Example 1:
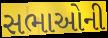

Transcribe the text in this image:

સભાઓની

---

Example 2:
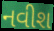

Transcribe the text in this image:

નવીશ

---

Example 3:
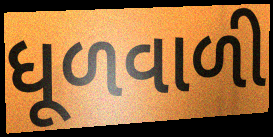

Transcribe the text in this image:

ધૂળવાળી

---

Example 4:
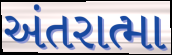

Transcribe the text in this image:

અંતરાત્મા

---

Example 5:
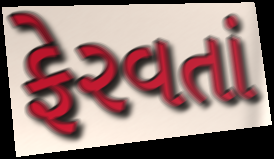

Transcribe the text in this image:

ફેરવતાં